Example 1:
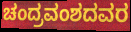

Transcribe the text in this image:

ಚಂದ್ರವಂಶದವರ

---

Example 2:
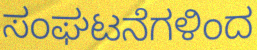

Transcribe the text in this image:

ಸಂಘಟನೆಗಳಿಂದ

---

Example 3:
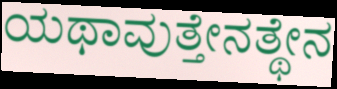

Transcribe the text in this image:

ಯಥಾವುತ್ತೇನತ್ಥೇನ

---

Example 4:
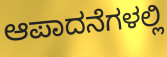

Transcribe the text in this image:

ಆಪಾದನೆಗಳಲ್ಲಿ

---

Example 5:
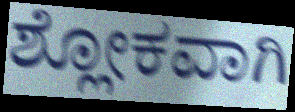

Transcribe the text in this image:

ಶ್ಲೋಕವಾಗಿ